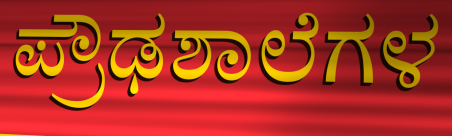
ಪ್ರೌಢಶಾಲೆಗಳ